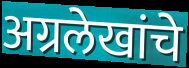
अग्रलेखांचे